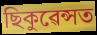
ছিকুৱেন্সত